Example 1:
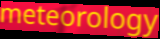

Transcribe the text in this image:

meteorology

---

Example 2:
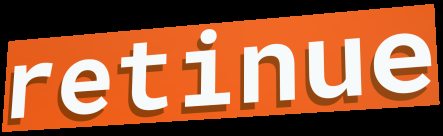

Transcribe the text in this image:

retinue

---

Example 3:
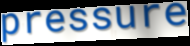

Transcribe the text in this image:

pressure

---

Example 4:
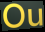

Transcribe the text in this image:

Ou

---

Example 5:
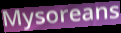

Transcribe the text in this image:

Mysoreans